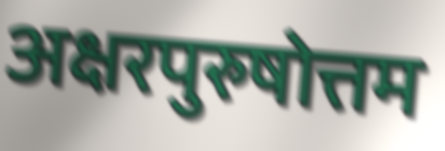
अक्षरपुरुषोत्तम